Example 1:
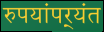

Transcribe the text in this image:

रुपयांपर्यंत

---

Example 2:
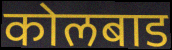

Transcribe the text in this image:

कोलबाड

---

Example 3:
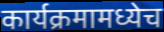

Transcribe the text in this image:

कार्यक्रमामध्येच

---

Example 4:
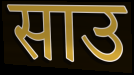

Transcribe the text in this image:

साउ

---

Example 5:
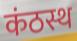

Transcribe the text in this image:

कंठस्थ